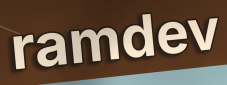
ramdev